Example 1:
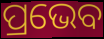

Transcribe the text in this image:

ପ୍ରଭେବ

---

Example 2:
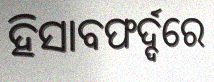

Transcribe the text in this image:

ହିସାବଫର୍ଦ୍ଦରେ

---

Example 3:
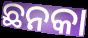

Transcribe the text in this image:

ଛନକା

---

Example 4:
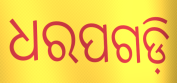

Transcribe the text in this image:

ଧରପଗଡ଼ି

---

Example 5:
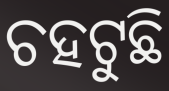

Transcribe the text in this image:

ଚହଟୁଛି